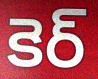
కెర్